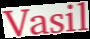
Vasil